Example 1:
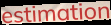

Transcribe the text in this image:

estimation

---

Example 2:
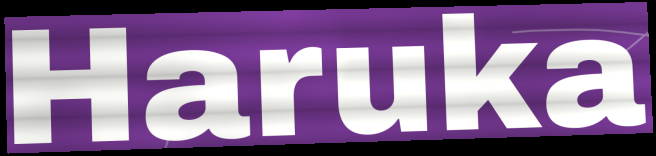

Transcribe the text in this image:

Haruka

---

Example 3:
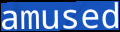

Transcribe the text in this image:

amused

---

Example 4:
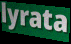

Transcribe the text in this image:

lyrata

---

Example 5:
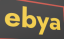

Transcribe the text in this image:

ebya